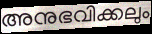
അനുഭവിക്കലും